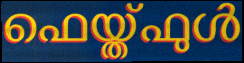
ഫെയ്ത്ഫുൾ